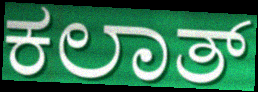
ಕಲಾತ್